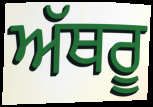
ਅੱਥਰੂ